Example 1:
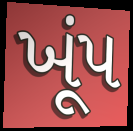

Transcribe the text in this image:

ખૂંપ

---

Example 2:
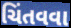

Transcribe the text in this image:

ચિંતવવા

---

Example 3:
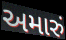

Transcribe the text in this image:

અમારું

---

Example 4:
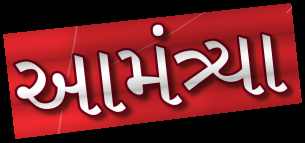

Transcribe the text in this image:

આમંત્ર્યા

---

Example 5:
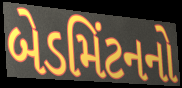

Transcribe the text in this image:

બેડમિંટનનો